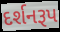
દર્શનરૂપ